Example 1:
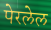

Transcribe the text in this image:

पेरलेल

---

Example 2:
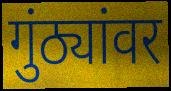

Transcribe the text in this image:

गुंठ्यांवर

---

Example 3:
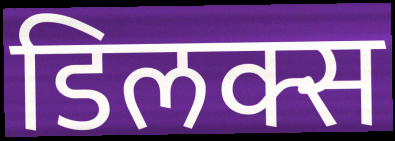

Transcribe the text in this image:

डिलक्स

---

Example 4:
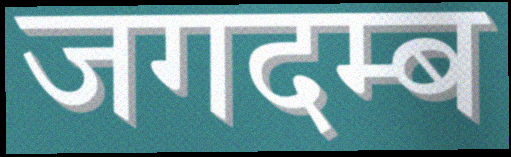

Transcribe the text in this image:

जगदम्ब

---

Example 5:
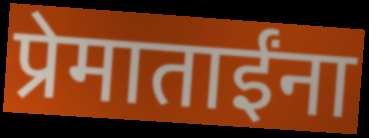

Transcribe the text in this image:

प्रेमाताईंना